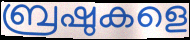
ബ്രഷുകളെ